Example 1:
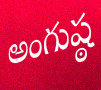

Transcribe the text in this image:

అంగుష్ఠ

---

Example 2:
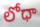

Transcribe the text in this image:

లోధా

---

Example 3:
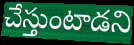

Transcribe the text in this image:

చేస్తుంటాడని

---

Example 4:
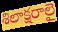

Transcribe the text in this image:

శిలాక్షరాలై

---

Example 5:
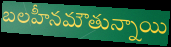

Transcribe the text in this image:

బలహీనమౌతున్నాయి